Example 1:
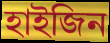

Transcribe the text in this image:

হাইজিন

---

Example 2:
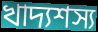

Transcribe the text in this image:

খাদ্যশস্য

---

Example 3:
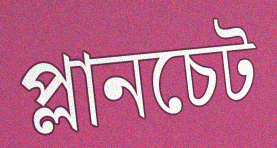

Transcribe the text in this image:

প্লানচেট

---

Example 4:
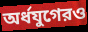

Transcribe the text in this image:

অর্ধযুগেরও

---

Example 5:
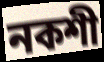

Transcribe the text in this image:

নকশী